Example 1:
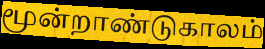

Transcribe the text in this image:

மூன்றாண்டுகாலம்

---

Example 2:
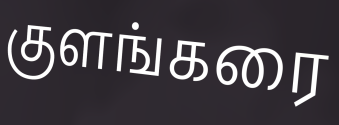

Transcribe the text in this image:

குளங்கரை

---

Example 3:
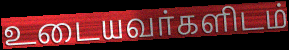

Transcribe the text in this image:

உடையவர்களிடம்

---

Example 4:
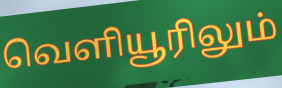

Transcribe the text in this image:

வெளியூரிலும்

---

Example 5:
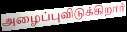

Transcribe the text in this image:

அழைப்புவிடுக்கிறார்